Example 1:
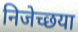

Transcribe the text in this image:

निजेच्छया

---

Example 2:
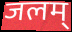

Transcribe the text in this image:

जलम्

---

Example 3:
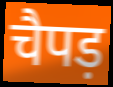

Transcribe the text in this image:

चैपड़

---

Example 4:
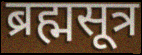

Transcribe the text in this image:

ब्रह्मसूत्र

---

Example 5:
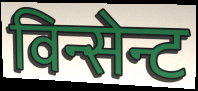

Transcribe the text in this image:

विन्सेन्ट